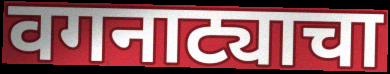
वगनाट्याचा